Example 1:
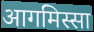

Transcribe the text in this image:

आगमिस्सा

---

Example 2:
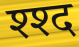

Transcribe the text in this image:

श्श्द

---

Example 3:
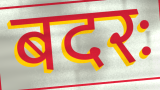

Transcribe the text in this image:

बदरः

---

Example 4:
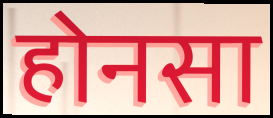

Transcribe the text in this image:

होनसा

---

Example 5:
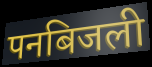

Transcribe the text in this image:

पनबिजली